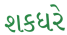
શકધરે